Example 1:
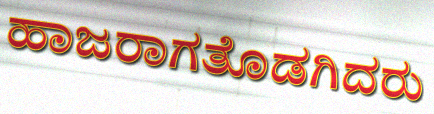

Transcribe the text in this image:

ಹಾಜರಾಗತೊಡಗಿದರು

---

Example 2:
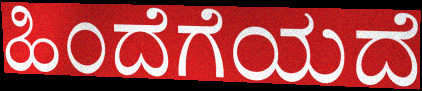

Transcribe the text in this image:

ಹಿಂದೆಗೆಯದೆ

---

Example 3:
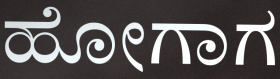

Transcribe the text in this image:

ಹೋಗಾಗ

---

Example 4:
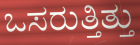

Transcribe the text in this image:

ಒಸರುತ್ತಿತ್ತು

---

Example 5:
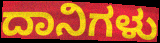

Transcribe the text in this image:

ದಾನಿಗಳು